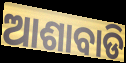
ଆଶାବାଡି